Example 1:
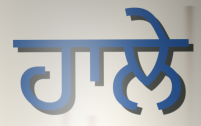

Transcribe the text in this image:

ਹਾਲੇ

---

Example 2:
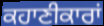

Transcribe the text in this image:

ਕਹਾਣੀਕਾਰਾਂ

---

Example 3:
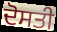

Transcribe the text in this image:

ਦੋਸਤੀ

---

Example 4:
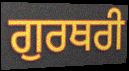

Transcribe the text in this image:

ਗੁਰਥਰੀ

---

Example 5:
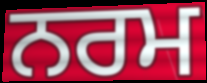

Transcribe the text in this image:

ਨਰਮ